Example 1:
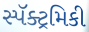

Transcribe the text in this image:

સ્પૅક્ટ્રમિકી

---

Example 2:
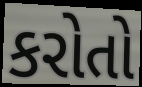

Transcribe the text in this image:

કરોતો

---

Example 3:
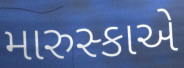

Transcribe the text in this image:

મારુસ્કાએ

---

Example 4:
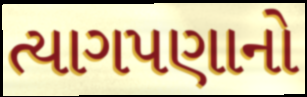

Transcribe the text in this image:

ત્યાગપણાનો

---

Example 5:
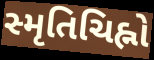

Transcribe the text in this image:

સ્મૃતિચિહ્નો